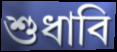
শুধাবি